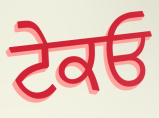
ਟੇਕਓ